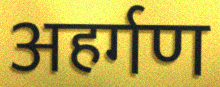
अहर्गण